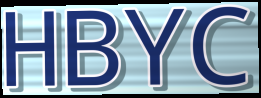
HBYC